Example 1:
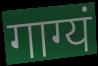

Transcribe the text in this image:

गाग्यं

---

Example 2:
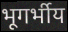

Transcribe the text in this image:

भूगर्भीय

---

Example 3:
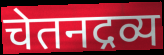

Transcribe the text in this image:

चेतनद्रव्य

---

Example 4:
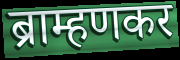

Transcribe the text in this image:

ब्राम्हणकर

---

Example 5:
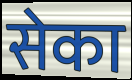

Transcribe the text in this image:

सेका